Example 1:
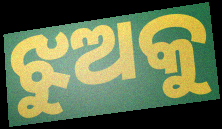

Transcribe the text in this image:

ଝୁଅକୁ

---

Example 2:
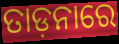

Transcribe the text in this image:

ତାଡ଼ନାରେ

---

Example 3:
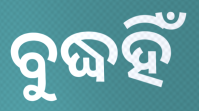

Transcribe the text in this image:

ବୁଦ୍ଧହିଁ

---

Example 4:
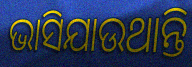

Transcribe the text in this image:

ଭାସିଯାଉଥାନ୍ତି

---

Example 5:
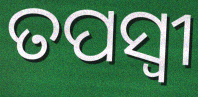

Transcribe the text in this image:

ତପସ୍ବୀ